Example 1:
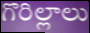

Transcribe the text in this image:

గొరిల్లాలు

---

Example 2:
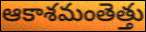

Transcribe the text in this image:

ఆకాశమంతెత్తు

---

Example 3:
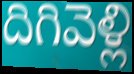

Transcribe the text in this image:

దిగివెళ్లి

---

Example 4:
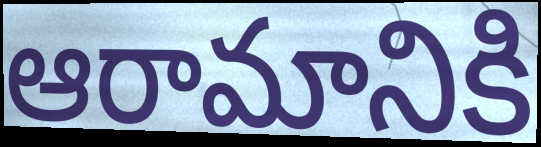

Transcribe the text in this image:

ఆరామానికి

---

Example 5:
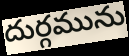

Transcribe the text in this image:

దుర్గమును